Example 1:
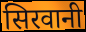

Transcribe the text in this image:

सिरवानी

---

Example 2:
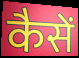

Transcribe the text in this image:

कैसें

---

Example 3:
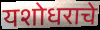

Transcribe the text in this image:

यशोधराचे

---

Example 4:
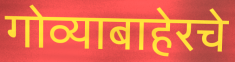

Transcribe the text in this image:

गोव्याबाहेरचे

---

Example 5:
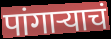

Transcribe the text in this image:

पांगाऱ्याचं